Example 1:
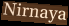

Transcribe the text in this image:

Nirnaya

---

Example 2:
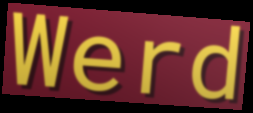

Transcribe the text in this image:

Werd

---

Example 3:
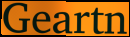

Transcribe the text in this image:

Geartn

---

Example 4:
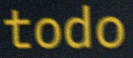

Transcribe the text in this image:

todo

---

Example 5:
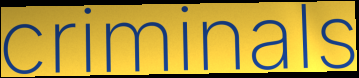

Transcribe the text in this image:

criminals